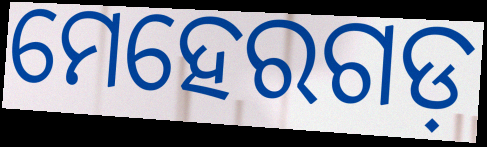
ମେହେରଗଡ଼